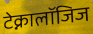
टेक्नालॉजिज